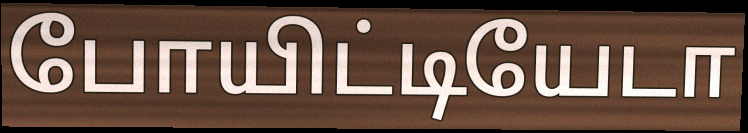
போயிட்டியேடா